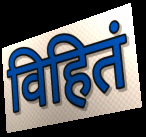
विहितं